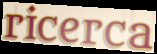
ricerca